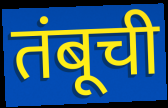
तंबूची